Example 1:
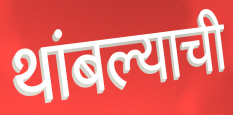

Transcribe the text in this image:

थांबल्याची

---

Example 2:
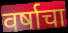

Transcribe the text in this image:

वर्षाचा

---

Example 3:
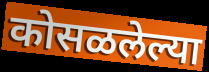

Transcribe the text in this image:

कोसळलेल्या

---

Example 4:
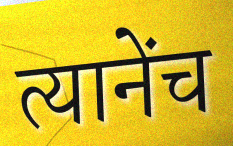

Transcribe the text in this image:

त्यानेंच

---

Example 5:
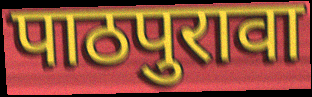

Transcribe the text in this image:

पाठपुरावा